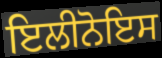
ਇਲੀਨੋਇਸ